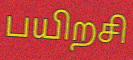
பயிறசி